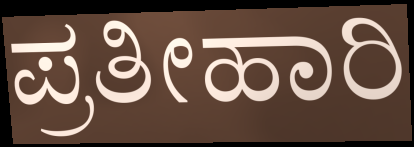
ಪ್ರತೀಹಾರಿ